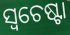
ସ୍ଵଚେଷ୍ଟା